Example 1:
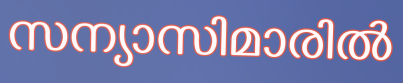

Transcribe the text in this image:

സന്യാസിമാരിൽ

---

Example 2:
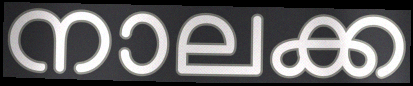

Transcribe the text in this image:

നാലക്ക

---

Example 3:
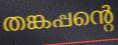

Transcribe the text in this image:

തങ്കപ്പന്റെ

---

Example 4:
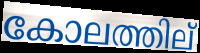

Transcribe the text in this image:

കോലത്തില്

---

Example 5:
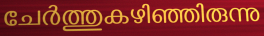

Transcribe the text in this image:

ചേർത്തുകഴിഞ്ഞിരുന്നു